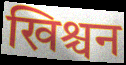
खिश्चन